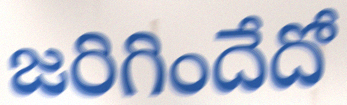
జరిగిందేదో